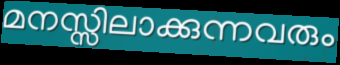
മനസ്സിലാക്കുന്നവരും